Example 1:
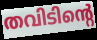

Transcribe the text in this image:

തവിടിന്റെ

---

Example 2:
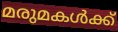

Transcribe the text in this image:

മരുമകൾക്ക്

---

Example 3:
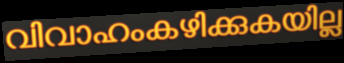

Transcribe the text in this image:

വിവാഹംകഴിക്കുകയില്ല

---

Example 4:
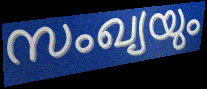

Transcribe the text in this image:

സംഖ്യയും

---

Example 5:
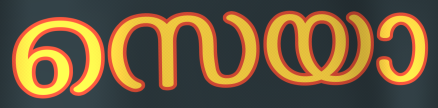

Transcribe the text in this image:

സെയാ